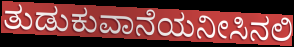
ತುಡುಕುವಾನೆಯನೀಸಿನಲಿ